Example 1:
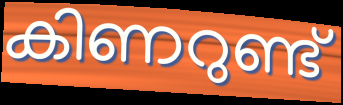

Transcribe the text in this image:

കിണറുണ്ട്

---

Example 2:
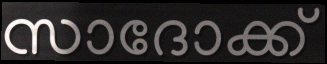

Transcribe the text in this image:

സാദോക്ക്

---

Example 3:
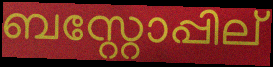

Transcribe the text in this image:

ബസ്റ്റോപ്പില്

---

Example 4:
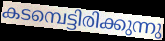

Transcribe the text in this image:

കടമ്പെട്ടിരിക്കുന്നു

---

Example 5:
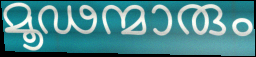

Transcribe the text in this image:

മൂഢന്മാരും